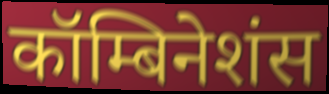
कॉम्बिनेशंस